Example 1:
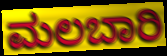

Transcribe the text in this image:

ಮಲಬಾರಿ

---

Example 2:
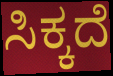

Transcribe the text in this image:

ಸಿಕ್ಕದೆ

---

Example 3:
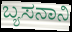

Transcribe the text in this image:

ಬ್ಯಸನಾನಿ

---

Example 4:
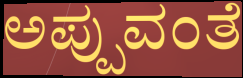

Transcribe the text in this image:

ಅಪ್ಪುವಂತೆ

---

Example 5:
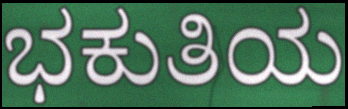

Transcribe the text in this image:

ಭಕುತಿಯ